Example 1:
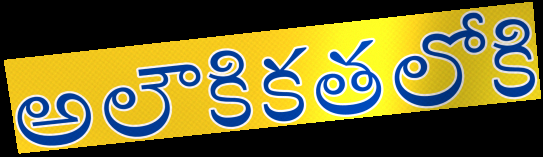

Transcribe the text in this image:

అలౌకికతలోకి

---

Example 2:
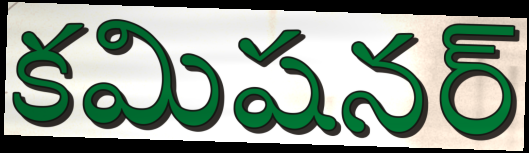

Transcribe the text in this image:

కమిషనర్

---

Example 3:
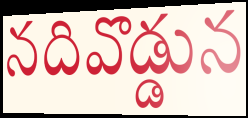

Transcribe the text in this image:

నదివొడ్డున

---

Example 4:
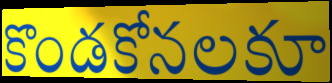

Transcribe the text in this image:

కొండకోనలకూ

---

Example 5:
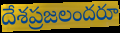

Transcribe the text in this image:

దేశప్రజలందరూ